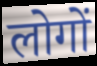
लोगों